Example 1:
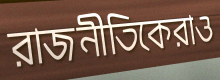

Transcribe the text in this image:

রাজনীতিকেরাও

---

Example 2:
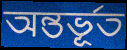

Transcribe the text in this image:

অন্তর্ভূত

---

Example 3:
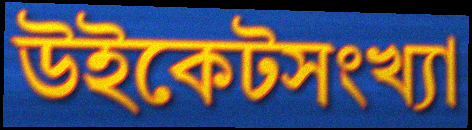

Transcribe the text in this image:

উইকেটসংখ্যা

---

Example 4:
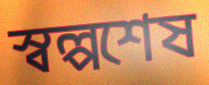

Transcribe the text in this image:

স্বল্পশেষ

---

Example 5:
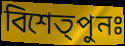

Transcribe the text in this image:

বিশেত্পুনঃ